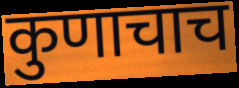
कुणाचाच